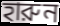
হারুন